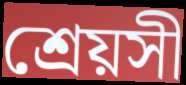
শ্রেয়সী